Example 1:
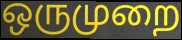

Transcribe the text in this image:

ஒருமுறை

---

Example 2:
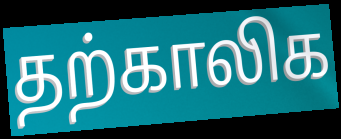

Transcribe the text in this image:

தற்காலிக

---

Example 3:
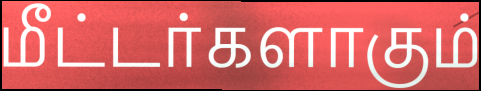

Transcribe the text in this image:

மீட்டர்களாகும்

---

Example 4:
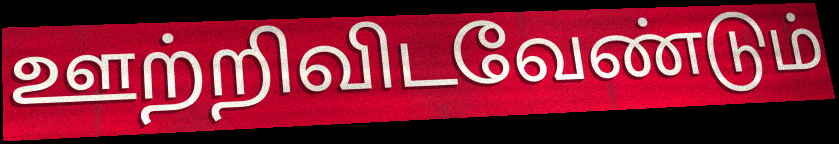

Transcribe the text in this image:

ஊற்றிவிடவேண்டும்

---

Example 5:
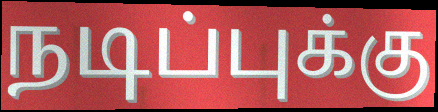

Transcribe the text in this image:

நடிப்புக்கு